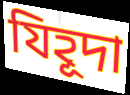
যিহূদা